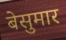
बेसुमार